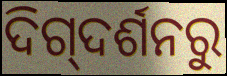
ଦିଗ୍‌ଦର୍ଶନରୁ